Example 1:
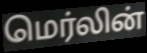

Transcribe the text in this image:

மெர்லின்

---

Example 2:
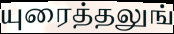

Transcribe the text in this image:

யுரைத்தலுங்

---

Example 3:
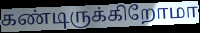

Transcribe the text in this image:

கண்டிருக்கிறோமா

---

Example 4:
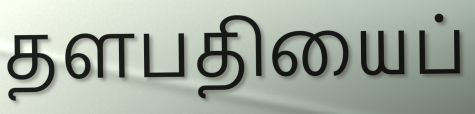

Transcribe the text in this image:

தளபதியைப்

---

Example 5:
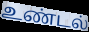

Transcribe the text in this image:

உண்டல்